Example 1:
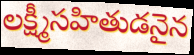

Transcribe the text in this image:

లక్ష్మీసహితుడనైన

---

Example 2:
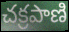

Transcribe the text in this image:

చక్రపాణి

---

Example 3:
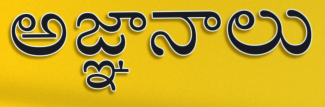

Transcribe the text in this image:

అజ్ఞానాలు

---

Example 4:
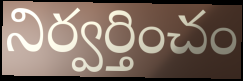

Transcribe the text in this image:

నిర్వర్తించం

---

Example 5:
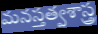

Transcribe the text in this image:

మనస్తత్వశాస్త్ర